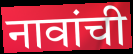
नावांची